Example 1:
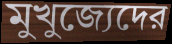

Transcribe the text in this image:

মুখুজ্যেদের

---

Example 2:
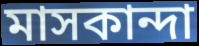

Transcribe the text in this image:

মাসকান্দা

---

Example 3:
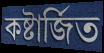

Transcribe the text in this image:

কষ্টার্জিত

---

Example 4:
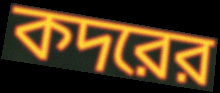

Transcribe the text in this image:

কদরের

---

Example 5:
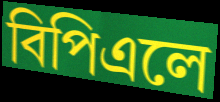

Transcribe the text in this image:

বিপিএলে